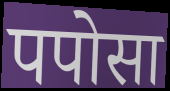
पपोसा